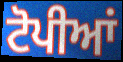
ਟੋਪੀਆਂ